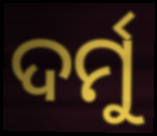
ଦର୍ମୁ